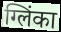
ग्लिंका